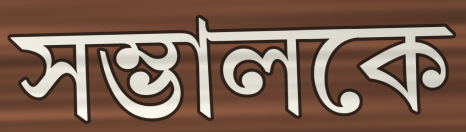
সম্ভালকে